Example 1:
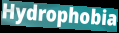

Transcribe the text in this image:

Hydrophobia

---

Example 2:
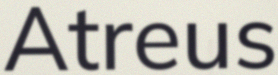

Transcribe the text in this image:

Atreus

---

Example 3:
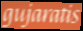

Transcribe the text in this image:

gujaratis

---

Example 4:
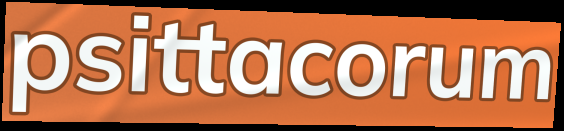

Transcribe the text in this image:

psittacorum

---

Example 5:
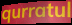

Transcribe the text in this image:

qurratul